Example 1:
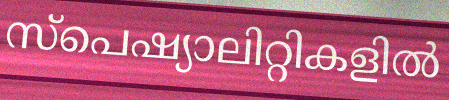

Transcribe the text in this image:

സ്പെഷ്യാലിറ്റികളിൽ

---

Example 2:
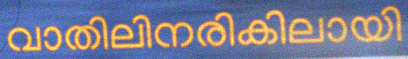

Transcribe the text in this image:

വാതിലിനരികിലായി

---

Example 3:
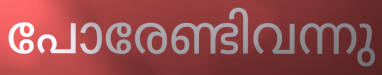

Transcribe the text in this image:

പോരേണ്ടിവന്നു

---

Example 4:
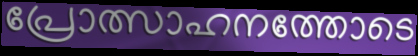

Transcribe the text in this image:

പ്രോത്സാഹനത്തോടെ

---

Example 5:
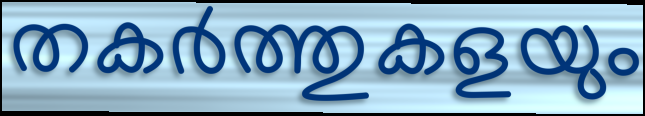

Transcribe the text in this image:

തകർത്തുകളയും